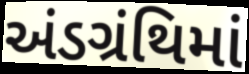
અંડગ્રંથિમાં